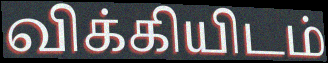
விக்கியிடம்